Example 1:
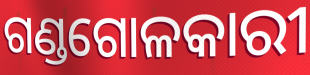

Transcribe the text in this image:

ଗଣ୍ଡଗୋଳକାରୀ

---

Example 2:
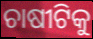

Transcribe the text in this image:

ଚାଷୀଟିକୁ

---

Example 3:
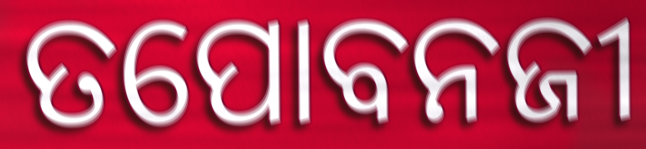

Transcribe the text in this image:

ତପୋବନଜୀ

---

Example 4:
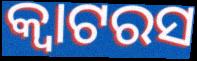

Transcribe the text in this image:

କ୍ୱାଟରସ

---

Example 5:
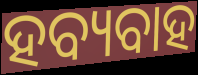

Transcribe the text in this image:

ହବ୍ୟବାହ